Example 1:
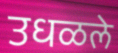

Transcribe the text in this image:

उधळले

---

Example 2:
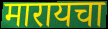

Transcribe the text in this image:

मारायचा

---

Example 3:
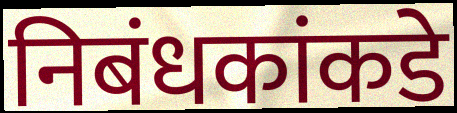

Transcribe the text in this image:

निबंधकांकडे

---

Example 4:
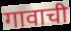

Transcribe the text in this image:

गावाची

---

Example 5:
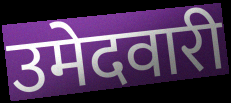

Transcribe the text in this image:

उमेदवारी